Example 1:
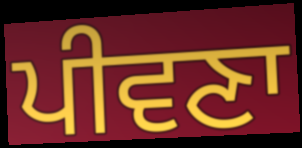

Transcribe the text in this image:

ਪੀਵਣਾ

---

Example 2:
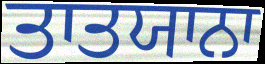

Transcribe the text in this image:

ਤਾਤਯਾਨਾ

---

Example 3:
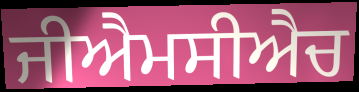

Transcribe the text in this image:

ਜੀਐਮਸੀਐਚ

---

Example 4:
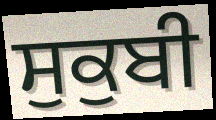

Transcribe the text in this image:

ਸੁਕੁਬੀ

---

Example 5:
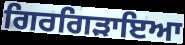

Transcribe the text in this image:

ਗਿਰਗਿੜਾਇਆ